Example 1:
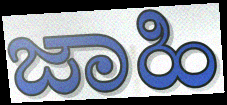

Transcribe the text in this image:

ಜಾಹಿ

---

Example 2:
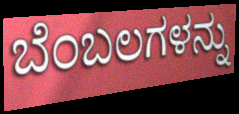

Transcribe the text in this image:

ಬೆಂಬಲಗಳನ್ನು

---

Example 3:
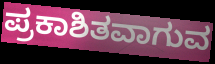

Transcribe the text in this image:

ಪ್ರಕಾಶಿತವಾಗುವ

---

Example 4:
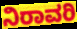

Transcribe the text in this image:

ನಿರಾವರಿ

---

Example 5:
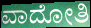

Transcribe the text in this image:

ವಾದೋತಿ